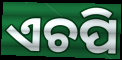
ଏଚପି